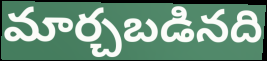
మార్చబడినది